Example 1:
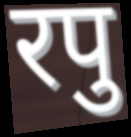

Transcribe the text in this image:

रपु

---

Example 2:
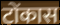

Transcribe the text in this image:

टोंकास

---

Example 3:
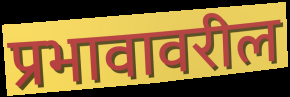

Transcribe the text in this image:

प्रभावावरील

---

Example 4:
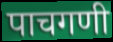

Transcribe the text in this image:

पाचगणी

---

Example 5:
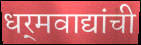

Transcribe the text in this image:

धर्मवाद्यांची